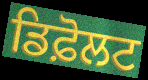
ਡਿਫ਼ੋਲਟ